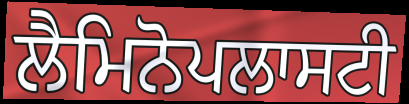
ਲੈਮਿਨੋਪਲਾਸਟੀ